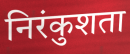
निरंकुशता